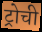
ट्रोची